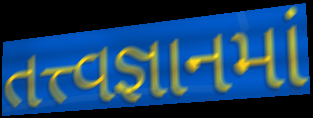
તત્ત્વજ્ઞાનમાં